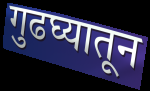
गुढघ्यातून